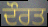
ਦੌਰਤ